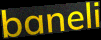
baneli